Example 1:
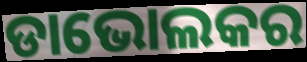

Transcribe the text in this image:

ଡାଭୋଲକର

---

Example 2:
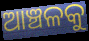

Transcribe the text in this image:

ଆଞ୍ଚଳକୁ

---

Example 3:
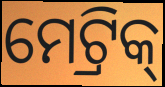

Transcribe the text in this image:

ମେଟ୍ରିକ୍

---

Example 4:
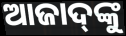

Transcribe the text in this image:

ଆଜାଦ୍‌ଙ୍କୁ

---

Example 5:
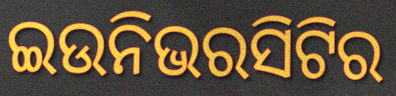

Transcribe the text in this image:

ଇଉନିଭରସିଟିର